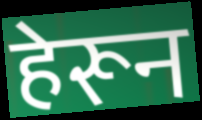
हेरून